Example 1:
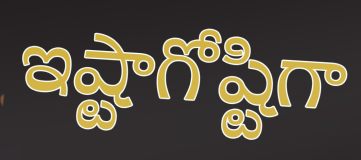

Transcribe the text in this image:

ఇష్టాగోష్టిగా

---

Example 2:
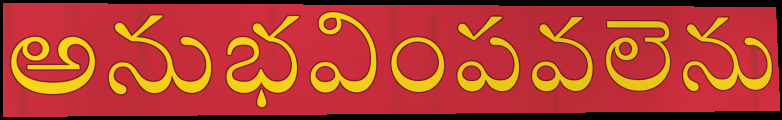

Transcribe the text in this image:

అనుభవింపవలెను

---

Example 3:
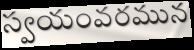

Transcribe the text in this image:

స్వయంవరమున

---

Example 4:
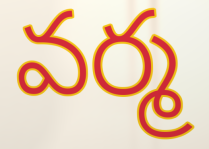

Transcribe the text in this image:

వర్మ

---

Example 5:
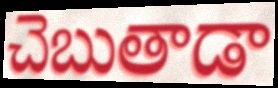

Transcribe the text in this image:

చెబుతాడా